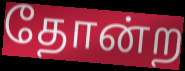
தோன்ற